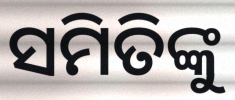
ସମିତିଙ୍କୁ